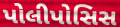
પોલીપોસિસ